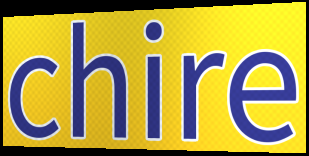
chire